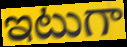
ఇటుగా